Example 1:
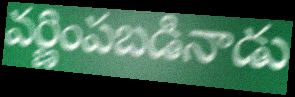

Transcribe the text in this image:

వర్ణింపబడినాడు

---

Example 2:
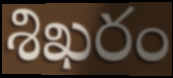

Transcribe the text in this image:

శిఖరం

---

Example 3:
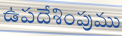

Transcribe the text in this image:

ఉపదేశింపుము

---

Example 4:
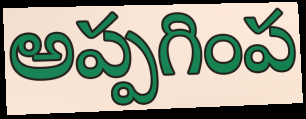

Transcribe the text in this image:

అప్పగింప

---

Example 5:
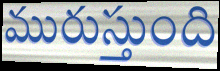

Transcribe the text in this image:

మురుస్తుంది